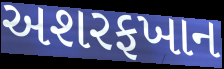
અશરફખાન